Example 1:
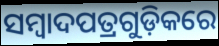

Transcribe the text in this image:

ସମ୍ୱାଦପତ୍ରଗୁଡ଼ିକରେ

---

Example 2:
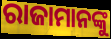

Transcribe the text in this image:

ରାଜାମାନଙ୍କୁ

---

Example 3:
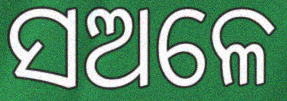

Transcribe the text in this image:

ସଅଳେ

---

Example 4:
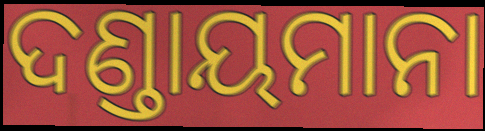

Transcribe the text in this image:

ଦଣ୍ଡାୟମାନା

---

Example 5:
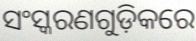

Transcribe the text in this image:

ସଂସ୍କରଣଗୁଡ଼ିକରେ